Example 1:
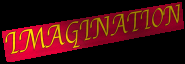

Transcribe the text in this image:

IMAGINATION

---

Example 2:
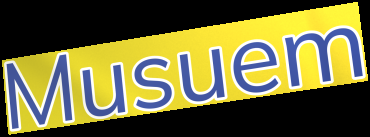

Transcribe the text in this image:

Musuem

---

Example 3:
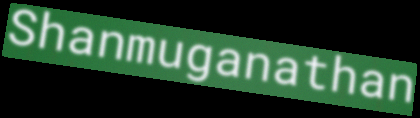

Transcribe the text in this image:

Shanmuganathan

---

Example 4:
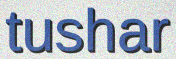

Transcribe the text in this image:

tushar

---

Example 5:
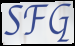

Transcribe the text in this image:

SFG